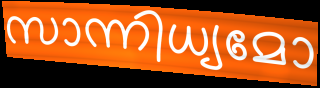
സാന്നിധ്യമോ